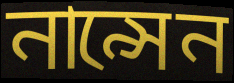
নান্সেন